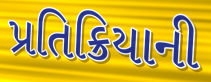
પ્રતિક્રિયાની